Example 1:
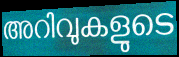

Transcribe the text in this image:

അറിവുകളുടെ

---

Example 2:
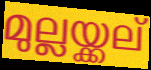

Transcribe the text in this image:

മുല്ലയ്ക്കല്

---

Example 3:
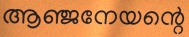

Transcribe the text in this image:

ആഞ്ജനേയന്റെ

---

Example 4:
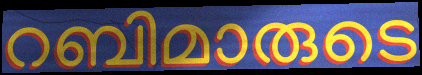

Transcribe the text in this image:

റബിമാരുടെ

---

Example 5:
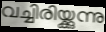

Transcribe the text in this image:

വച്ചിരിയ്ക്കുന്നു